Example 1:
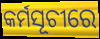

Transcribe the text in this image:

କର୍ମସୂଚୀରେ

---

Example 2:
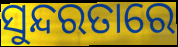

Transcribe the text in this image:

ସୁନ୍ଦରତାରେ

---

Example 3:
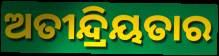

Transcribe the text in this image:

ଅତୀନ୍ଦ୍ରିୟତାର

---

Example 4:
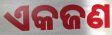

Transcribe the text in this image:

ଏକଜଣ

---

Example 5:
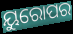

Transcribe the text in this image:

ୟୁରୋପର